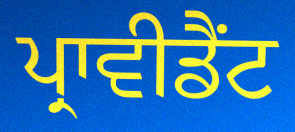
ਪ੍ਰਾਵੀਡੈਂਟ